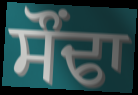
ਸੌਂਢਾ